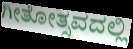
ಗೀತೋತ್ಸವದಲ್ಲಿ